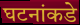
घटनांकडे